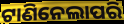
ଟାଣିନେଲାପରି